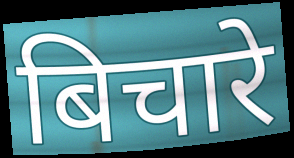
बिचारे